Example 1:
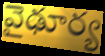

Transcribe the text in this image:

వైఢూర్య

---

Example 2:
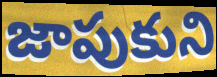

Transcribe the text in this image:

జాపుకుని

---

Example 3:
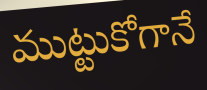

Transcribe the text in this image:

ముట్టుకోగానే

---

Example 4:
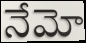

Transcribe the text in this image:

నేమో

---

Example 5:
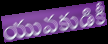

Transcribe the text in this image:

యువకుడికీ